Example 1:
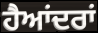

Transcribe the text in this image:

ਹੈਆਂਦਰਾਂ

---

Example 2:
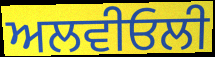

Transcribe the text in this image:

ਅਲਵੀਓਲੀ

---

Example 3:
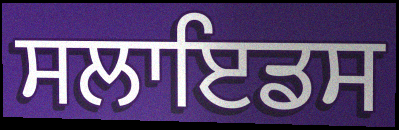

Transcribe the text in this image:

ਸਲਾਇਡਸ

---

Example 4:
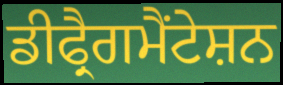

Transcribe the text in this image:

ਡੀਫ੍ਰੈਗਮੈਂਟੇਸ਼ਨ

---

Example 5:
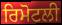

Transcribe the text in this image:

ਰਿਮੋਟਲੀ